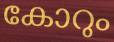
കോറും